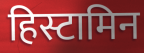
हिस्टामिन